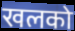
खलको